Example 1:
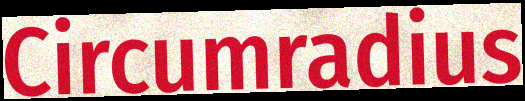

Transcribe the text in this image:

Circumradius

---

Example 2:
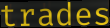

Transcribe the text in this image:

trades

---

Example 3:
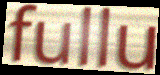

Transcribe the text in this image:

fullu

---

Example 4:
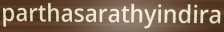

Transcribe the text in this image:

parthasarathyindira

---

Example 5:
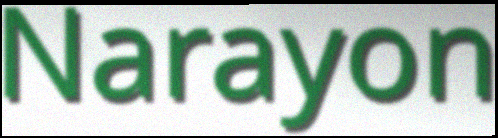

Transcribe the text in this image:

Narayon